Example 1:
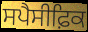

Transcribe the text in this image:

ਸਪੈਸੀਫ਼ਿਕ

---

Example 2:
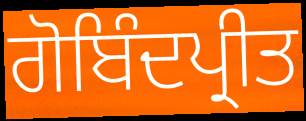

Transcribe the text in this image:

ਗੋਬਿੰਦਪ੍ਰੀਤ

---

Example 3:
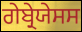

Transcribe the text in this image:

ਗੇਬ੍ਰੇਯੇਸਸ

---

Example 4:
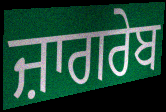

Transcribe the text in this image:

ਜ਼ਾਗਰੇਬ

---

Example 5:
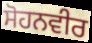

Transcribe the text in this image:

ਸੋਹਨਵੀਰ